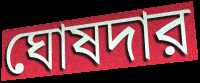
ঘোষদার